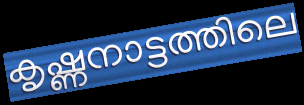
കൃഷ്ണനാട്ടത്തിലെ